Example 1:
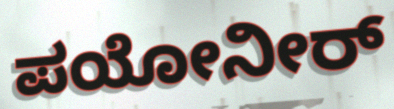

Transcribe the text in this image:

ಪಯೋನೀರ್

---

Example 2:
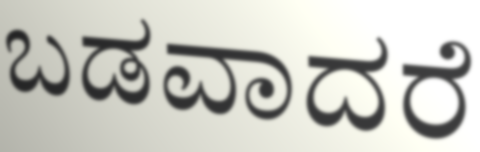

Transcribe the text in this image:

ಬಡವಾದರೆ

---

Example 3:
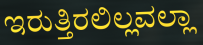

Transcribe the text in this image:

ಇರುತ್ತಿರಲಿಲ್ಲವಲ್ಲಾ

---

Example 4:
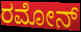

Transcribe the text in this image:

ರಮೋನ್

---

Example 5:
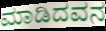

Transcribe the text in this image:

ಮಾಡಿದವನ